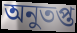
অনুতপ্ত